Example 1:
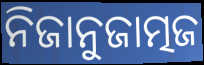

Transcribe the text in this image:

ନିଜାନୁଜାତ୍ମଜ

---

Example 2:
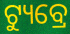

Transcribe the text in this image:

ଟ୍ୟୁବ୍ରେ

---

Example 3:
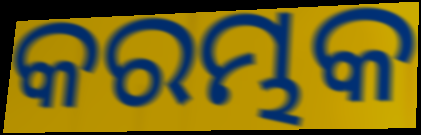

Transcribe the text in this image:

କରମ୍ଭକ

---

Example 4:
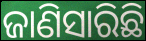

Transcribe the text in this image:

ଜାଣିସାରିଛି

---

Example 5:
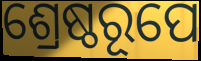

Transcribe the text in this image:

ଶ୍ରେଷ୍ଠରୂପେ